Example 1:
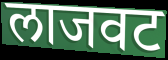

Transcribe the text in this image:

लाजवट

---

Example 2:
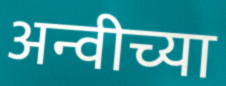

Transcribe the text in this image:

अन्वीच्या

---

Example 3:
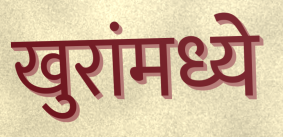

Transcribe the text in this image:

खुरांमध्ये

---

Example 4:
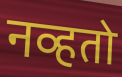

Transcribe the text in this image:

नव्हतो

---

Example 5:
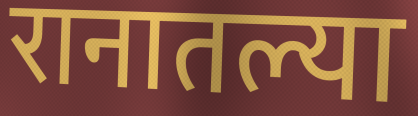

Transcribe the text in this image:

रानातल्या